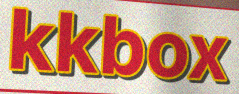
kkbox